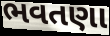
ભવતણા